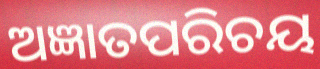
ଅଜ୍ଞାତପରିଚୟ